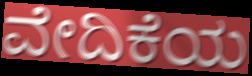
ವೇದಿಕೆಯ